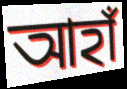
আহাঁ